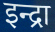
इन्द्रा